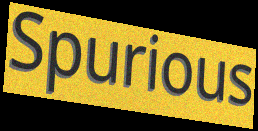
Spurious